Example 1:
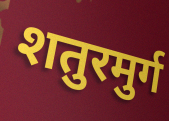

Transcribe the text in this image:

शतुरमुर्ग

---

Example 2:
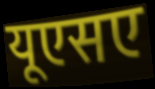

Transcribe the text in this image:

यूएसए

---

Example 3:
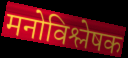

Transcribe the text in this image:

मनोविश्लेषक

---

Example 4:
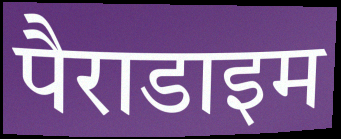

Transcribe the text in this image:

पैराडाइम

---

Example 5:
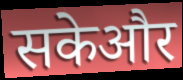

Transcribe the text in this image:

सकेऔर